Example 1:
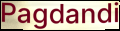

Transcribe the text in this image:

Pagdandi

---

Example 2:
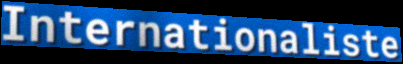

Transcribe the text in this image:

Internationaliste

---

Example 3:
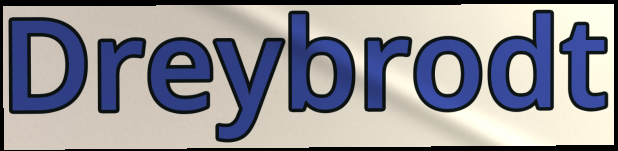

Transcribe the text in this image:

Dreybrodt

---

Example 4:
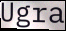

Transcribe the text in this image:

Ugra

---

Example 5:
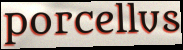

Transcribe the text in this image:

porcellus